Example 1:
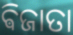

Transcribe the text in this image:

ଵିଜାତା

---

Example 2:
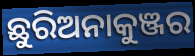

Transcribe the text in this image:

ଛୁରିଅନାକୁଞ୍ଜର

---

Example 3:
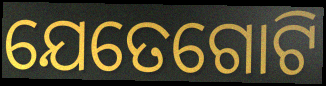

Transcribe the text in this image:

ଯେତେଗୋଟି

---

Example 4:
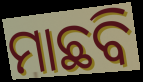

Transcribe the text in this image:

ମାଛବି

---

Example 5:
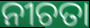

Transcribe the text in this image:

ନୀଚତା